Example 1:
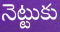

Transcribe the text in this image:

నెట్టుకు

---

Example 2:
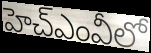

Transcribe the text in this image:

హెచ్ఎంవీలో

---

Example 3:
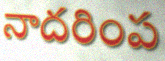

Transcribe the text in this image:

నాదరింప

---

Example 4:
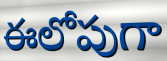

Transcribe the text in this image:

ఈలోపుగా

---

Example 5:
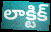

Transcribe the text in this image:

లాక్టిక్